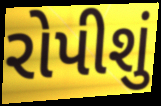
રોપીશું